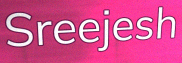
Sreejesh